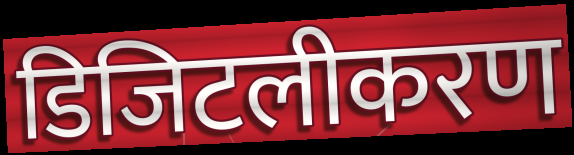
डिजिटलीकरण